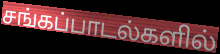
சங்கப்பாடல்களில்